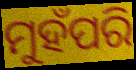
ମୁହଁପରି